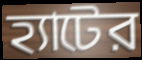
হ্যাটের